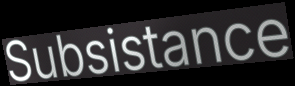
Subsistance